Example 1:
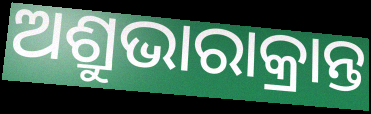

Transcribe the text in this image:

ଅଶ୍ରୁଭାରାକ୍ରାନ୍ତ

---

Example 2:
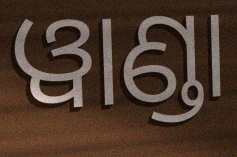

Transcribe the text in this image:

ୱାଣ୍ଡା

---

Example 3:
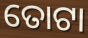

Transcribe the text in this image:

ତୋଟା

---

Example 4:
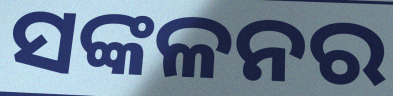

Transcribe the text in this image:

ସଙ୍କଳନର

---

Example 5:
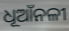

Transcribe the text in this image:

ଧୂଆଁନଳୀ